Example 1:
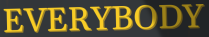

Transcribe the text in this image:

EVERYBODY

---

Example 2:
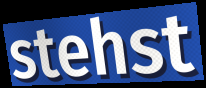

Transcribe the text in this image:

stehst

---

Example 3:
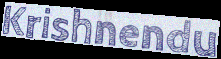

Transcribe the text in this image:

Krishnendu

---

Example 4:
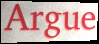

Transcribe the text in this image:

Argue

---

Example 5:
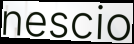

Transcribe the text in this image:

nescio